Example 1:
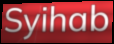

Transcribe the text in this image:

Syihab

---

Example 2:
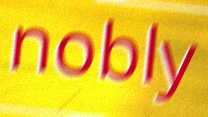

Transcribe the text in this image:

nobly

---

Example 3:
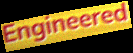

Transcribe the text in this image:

Engineered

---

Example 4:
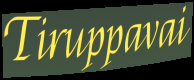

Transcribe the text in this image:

Tiruppavai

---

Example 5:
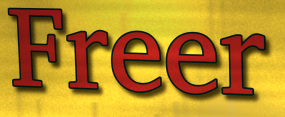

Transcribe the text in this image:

Freer